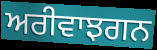
ਅਰੀਵਾਝਗਨ